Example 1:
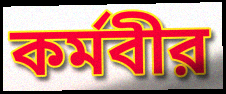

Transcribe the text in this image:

কর্মবীর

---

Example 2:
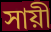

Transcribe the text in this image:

সায়ী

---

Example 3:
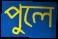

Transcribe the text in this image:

পুলে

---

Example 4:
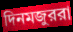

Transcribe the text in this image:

দিনমজুররা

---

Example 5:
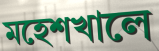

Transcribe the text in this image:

মহেশখালে